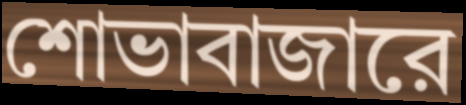
শোভাবাজারে